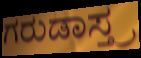
ಗರುಡಾಸ್ತ್ರ